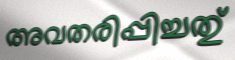
അവതരിപ്പിച്ചതു്